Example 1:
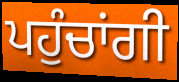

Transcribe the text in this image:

ਪਹੁੰਚਾਂਗੀ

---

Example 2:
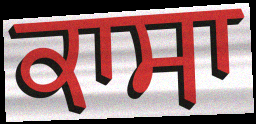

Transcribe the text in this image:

ਕਾਸਾ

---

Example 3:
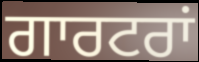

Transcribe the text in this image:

ਗਾਰਟਰਾਂ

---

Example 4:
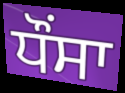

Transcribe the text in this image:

ਧੌਂਸਾ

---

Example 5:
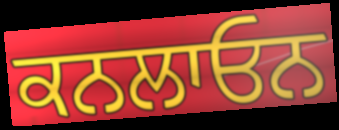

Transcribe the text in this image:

ਕਨਲਾਓਨ